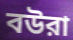
বউরা